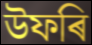
উফৰি